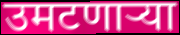
उमटणाऱ्या